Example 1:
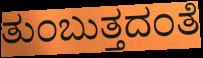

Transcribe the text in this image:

ತುಂಬುತ್ತದಂತೆ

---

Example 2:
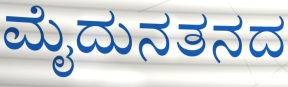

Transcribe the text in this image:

ಮೈದುನತನದ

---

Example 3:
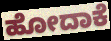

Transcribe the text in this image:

ಹೋದಾಕೆ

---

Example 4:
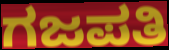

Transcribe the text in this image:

ಗಜಪತಿ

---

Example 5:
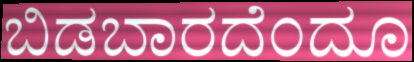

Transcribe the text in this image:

ಬಿಡಬಾರದೆಂದೂ